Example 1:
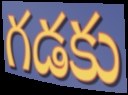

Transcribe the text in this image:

గడకు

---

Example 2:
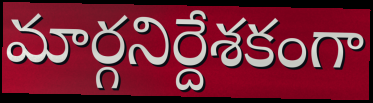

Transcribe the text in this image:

మార్గనిర్దేశకంగా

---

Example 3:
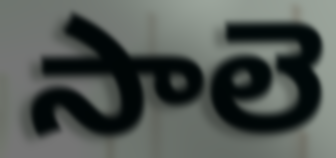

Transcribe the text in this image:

సాలె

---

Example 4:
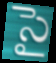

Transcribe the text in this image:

సై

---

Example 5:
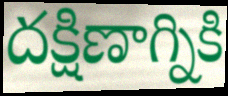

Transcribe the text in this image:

దక్షిణాగ్నికి